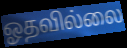
ஓதவில்லை